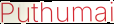
Puthumai